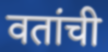
वतांची